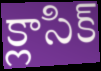
క్లాసిక్